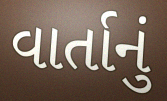
વાર્તાનું